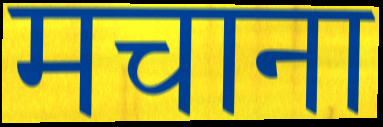
मचाना